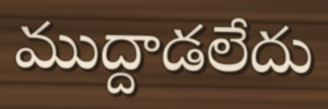
ముద్దాడలేదు